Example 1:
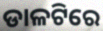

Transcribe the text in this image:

ଡାଳଟିରେ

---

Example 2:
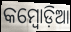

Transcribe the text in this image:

କମ୍ୱୋଡ଼ିଆ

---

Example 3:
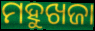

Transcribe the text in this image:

ମହୁଖଜା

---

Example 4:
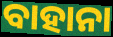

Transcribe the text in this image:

ବାହାନା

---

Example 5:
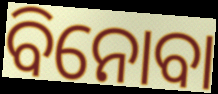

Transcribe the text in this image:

ବିନୋବା